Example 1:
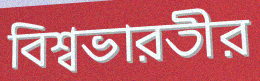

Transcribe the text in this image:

বিশ্বভারতীর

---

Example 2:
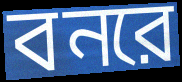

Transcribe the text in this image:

বনরে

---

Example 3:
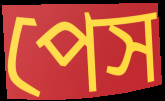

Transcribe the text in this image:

পেস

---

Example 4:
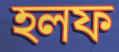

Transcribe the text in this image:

হলফ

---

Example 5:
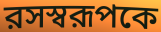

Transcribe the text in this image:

রসস্বরূপকে